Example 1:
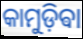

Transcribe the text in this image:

କାମୁଡ଼ିଵା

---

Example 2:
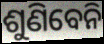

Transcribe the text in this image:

ଶୁଣିବେନି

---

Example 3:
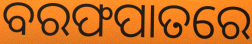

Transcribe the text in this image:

ବରଫପାତରେ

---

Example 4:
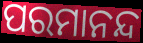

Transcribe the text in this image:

ପରମାନନ୍ଦ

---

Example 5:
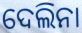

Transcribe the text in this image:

ଦେଲିନା